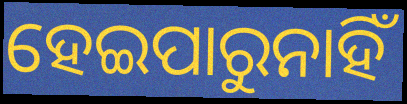
ହେଇପାରୁନାହିଁ